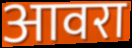
आवरा